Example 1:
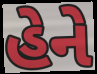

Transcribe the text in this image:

હેને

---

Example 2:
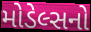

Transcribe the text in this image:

મોડેલ્સનો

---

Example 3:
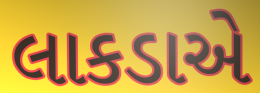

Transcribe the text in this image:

લાકડાએ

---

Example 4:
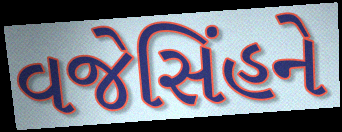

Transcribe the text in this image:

વજેસિંહને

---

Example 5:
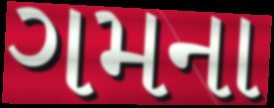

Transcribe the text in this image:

ગમના